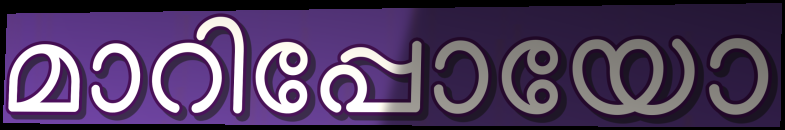
മാറിപ്പോയോ